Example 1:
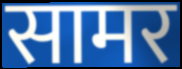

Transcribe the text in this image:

सामर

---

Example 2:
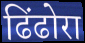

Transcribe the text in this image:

ढिंढोरा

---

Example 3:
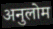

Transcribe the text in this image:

अनुलोम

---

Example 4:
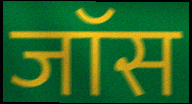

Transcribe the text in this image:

जॉस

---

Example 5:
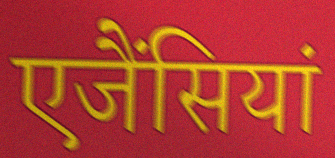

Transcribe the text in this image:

एजैंसियां